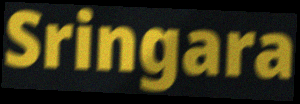
Sringara